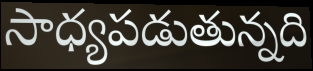
సాధ్యపడుతున్నది